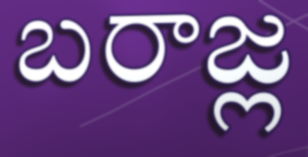
బరాజ్ల